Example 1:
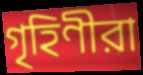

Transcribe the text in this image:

গৃহিণীরা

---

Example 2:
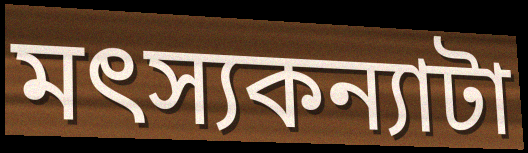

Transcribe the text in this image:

মৎস্যকন্যাটা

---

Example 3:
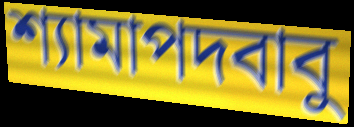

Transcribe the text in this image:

শ্যামাপদবাবু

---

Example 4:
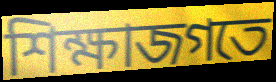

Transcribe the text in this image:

শিক্ষাজগতে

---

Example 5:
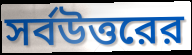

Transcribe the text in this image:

সর্বউত্তরের